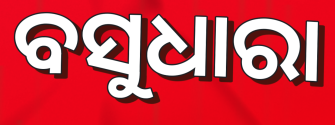
ବସୁଧାରା